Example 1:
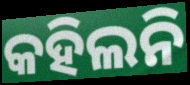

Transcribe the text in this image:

କହିଲନି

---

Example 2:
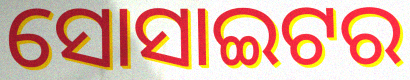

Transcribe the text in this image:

ସୋସାଇଟର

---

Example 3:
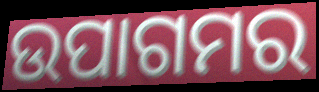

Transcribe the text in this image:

ଉପାଗମର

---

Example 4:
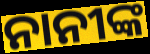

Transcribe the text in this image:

ନାନୀଙ୍କ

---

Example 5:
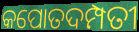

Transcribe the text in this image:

କପୋତଦମ୍ପତୀ